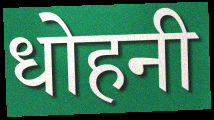
धोहनी